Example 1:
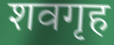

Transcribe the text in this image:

शवगृह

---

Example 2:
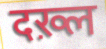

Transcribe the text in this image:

दख़्ल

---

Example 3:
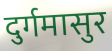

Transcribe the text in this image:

दुर्गमासुर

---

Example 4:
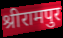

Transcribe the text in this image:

श्रीरामपुर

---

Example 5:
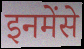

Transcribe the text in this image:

इनमेंसे